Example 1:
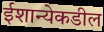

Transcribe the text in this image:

ईशान्येकडील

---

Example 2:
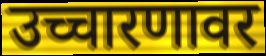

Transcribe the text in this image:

उच्चारणावर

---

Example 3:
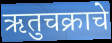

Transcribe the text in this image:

ऋतुचक्राचे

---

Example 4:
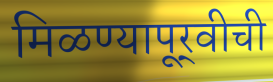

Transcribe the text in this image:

मिळण्यापूर्वीची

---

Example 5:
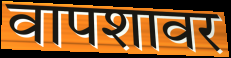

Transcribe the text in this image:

वापशावर